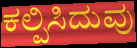
ಕಲ್ಪಿಸಿದುವು